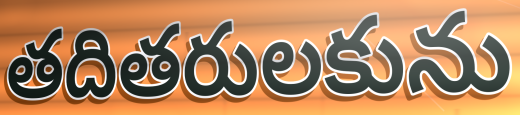
తదితరులకును